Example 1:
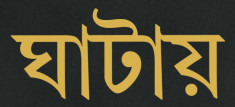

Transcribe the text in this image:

ঘাটায়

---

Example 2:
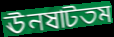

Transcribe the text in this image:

ঊনষাটতম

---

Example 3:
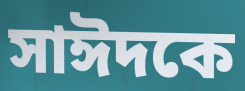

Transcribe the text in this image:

সাঈদকে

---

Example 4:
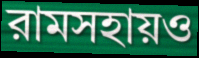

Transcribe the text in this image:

রামসহায়ও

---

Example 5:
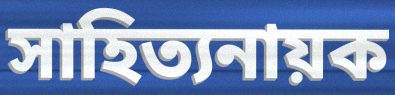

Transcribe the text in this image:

সাহিত্যনায়ক